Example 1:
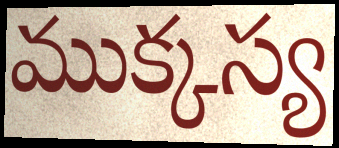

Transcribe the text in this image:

ముక్కస్య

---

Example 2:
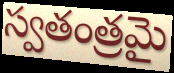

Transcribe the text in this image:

స్వతంత్రమై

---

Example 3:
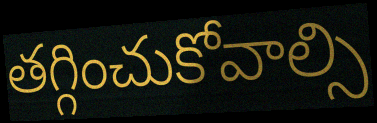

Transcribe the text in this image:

తగ్గించుకోవాల్సి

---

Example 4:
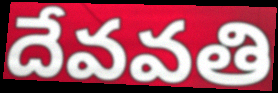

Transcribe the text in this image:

దేవవతి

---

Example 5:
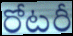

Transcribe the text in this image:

రోటరీ